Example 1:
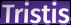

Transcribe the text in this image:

Tristis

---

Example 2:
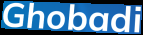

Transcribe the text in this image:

Ghobadi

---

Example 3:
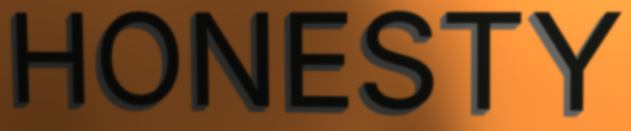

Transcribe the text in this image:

HONESTY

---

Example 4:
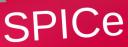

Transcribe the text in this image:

SPICe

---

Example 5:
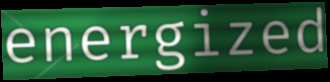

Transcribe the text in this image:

energized